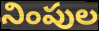
నింపుల